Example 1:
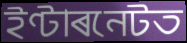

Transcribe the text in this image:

ইণ্টাৰনেটত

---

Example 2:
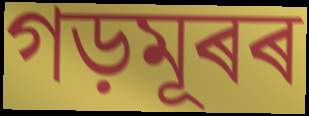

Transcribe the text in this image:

গড়মূৰৰ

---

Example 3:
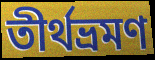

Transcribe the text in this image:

তীৰ্থভ্ৰমণ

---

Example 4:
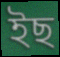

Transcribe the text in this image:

ইছ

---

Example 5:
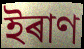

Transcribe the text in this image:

ইৰাণ